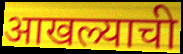
आखल्याची